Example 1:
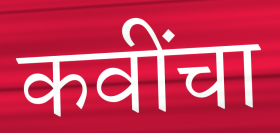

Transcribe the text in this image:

कवींचा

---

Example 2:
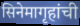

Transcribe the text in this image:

सिनेमागृहांची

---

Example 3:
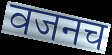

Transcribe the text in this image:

वजनच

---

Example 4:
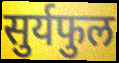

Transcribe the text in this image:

सुर्यफुल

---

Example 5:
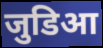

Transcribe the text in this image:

जुडिआ